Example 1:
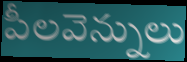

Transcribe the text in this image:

పీలవెన్నులు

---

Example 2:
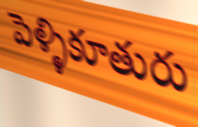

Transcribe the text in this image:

పెళ్ళికూతురు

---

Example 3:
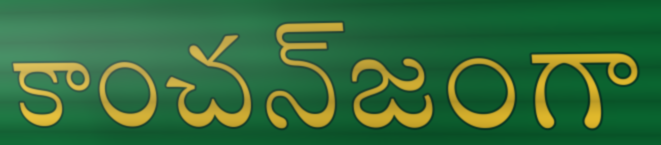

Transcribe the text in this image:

కాంచన్‌జంగా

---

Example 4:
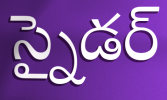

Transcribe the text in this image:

స్నైడర్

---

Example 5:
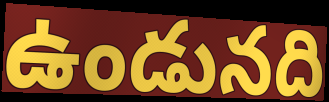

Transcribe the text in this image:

ఉండునది